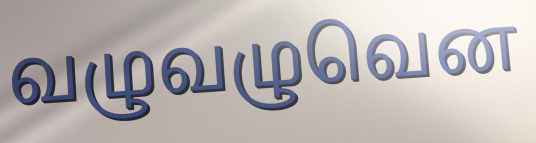
வழுவழுவென